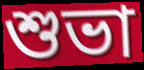
শুভা